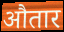
औतार